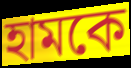
হামকে